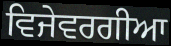
ਵਿਜੇਵਰਗੀਆ